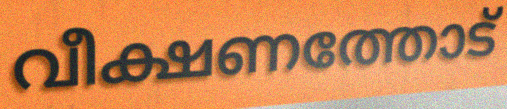
വീക്ഷണത്തോട്